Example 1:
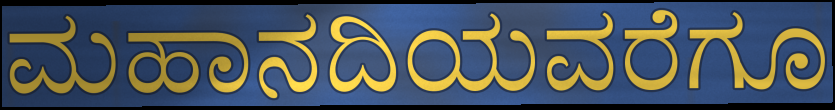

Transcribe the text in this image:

ಮಹಾನದಿಯವರೆಗೂ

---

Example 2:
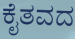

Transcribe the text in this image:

ಕೈತವದ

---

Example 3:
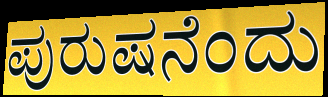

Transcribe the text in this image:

ಪುರುಷನೆಂದು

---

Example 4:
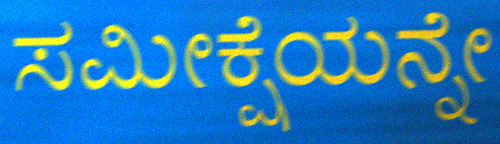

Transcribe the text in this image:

ಸಮೀಕ್ಷೆಯನ್ನೇ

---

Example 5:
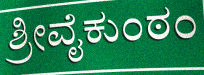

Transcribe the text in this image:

ಶ್ರೀವೈಕುಂಠಂ